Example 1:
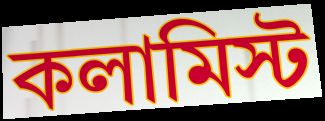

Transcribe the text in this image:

কলামিস্ট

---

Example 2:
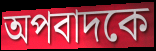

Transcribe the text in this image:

অপবাদকে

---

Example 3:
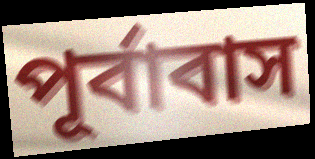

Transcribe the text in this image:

পূর্বাবাস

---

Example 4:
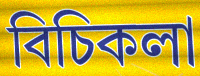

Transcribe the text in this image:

বিচিকলা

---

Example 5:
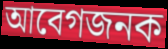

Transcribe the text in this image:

আবেগজনক